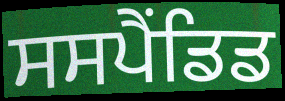
ਸਸਪੈਂਡਿਡ